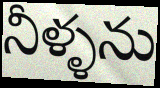
నీళ్ళను